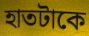
হাতটাকে